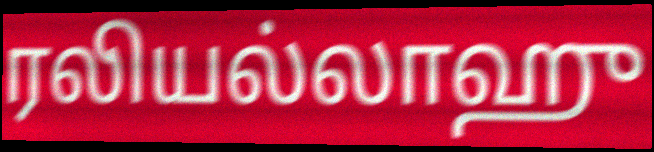
ரலியல்லாஹு